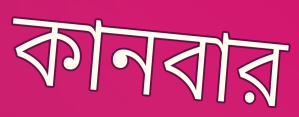
কানবার